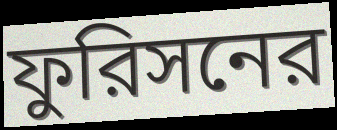
ফুরিসনের